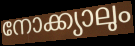
നോക്ക്യാലും